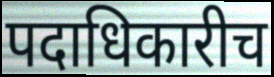
पदाधिकारीच